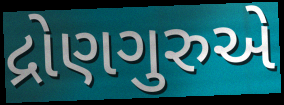
દ્રોણગુરુએ